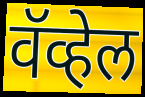
वॅव्हेल